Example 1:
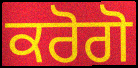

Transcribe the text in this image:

ਕਰੋਗੋ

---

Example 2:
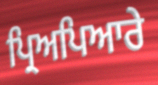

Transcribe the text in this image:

ਪ੍ਰਿਅਪਿਆਰੇ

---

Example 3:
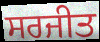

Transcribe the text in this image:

ਸਰਜੀਤ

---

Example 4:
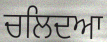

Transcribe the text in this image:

ਚਲਿਦਆ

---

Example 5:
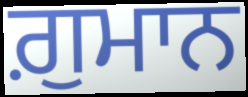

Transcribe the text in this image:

ਗ਼ੁਮਾਨ